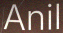
Anil